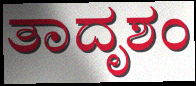
ತಾದೃಶಂ